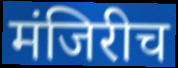
मंजिरीच